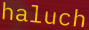
haluch